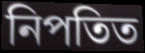
নিপতিত